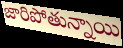
జారిపోతున్నాయి